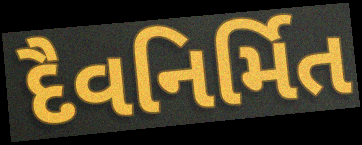
દૈવનિર્મિત